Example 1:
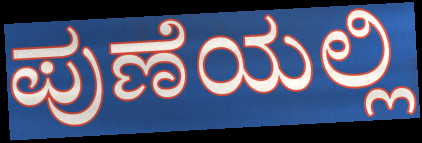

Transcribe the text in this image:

ಪುಣೆಯಲ್ಲಿ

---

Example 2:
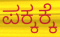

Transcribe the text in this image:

ಪಕ್ಕಕ್ಕೆ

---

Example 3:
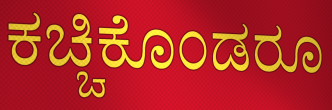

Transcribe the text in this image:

ಕಚ್ಚಿಕೊಂಡರೂ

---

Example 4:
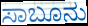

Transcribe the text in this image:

ಸಾಬೂನು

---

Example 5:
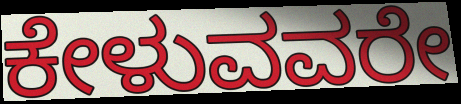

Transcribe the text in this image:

ಕೇಳುವವರೇ